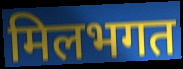
मिलभगत